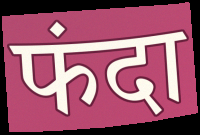
फंदा